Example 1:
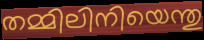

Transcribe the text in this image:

തമ്മിലിനിയെന്തു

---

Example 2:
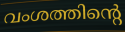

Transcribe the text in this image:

വംശത്തിന്റെ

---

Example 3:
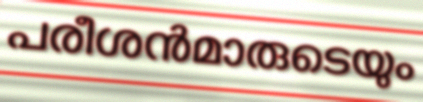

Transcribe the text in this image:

പരീശൻമാരുടെയും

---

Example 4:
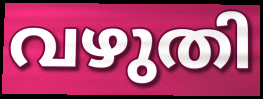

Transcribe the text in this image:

വഴുതി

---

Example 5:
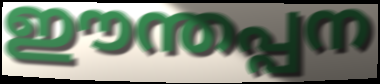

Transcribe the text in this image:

ഈന്തപ്പന